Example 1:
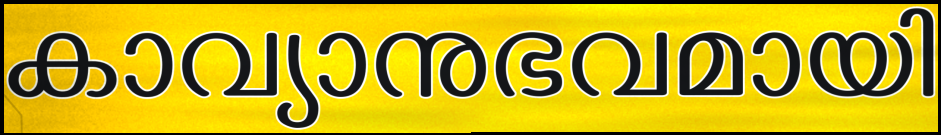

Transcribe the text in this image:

കാവ്യാനുഭവമായി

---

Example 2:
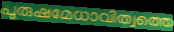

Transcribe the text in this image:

പുരുഷമേധാവിത്വത്തെ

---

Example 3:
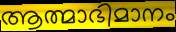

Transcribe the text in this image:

ആത്മാഭിമാനം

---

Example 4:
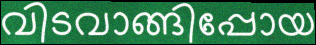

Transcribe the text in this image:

വിടവാങ്ങിപ്പോയ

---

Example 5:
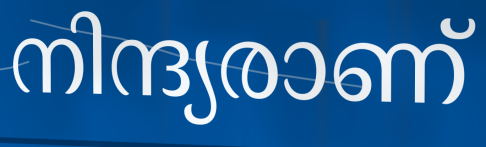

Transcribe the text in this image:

നിന്ദ്യരാണ്